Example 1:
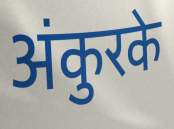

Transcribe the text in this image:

अंकुरके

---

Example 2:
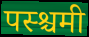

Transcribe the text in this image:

पस्श्चमी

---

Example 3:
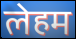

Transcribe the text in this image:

लेहम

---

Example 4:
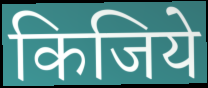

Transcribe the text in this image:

किजिये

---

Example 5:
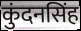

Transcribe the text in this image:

कुंदनसिंह